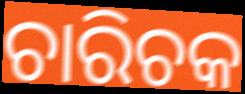
ଚାରିଚକ